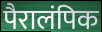
पैरालंपिक